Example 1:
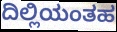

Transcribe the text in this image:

ದಿಲ್ಲಿಯಂತಹ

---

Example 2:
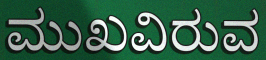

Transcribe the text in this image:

ಮುಖವಿರುವ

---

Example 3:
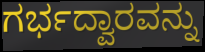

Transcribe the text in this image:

ಗರ್ಭದ್ವಾರವನ್ನು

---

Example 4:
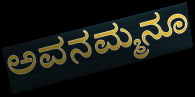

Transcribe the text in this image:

ಅವನಮ್ಮನೂ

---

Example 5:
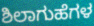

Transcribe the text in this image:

ಶಿಲಾಗುಹೆಗಳ